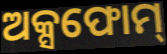
ଅକ୍ସଫୋମ୍